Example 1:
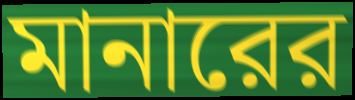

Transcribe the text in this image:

মানারের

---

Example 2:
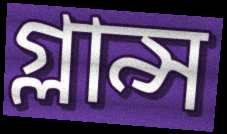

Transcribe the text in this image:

গ্লান্স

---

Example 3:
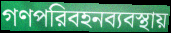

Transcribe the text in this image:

গণপরিবহনব্যবস্থায়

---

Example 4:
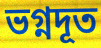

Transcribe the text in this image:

ভগ্নদূত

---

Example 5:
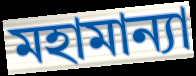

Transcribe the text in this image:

মহামান্যা